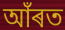
আঁৰত